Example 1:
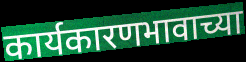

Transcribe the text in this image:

कार्यकारणभावाच्या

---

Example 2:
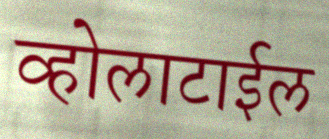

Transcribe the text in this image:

व्होलाटाईल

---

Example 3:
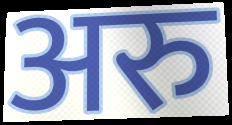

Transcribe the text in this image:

अरु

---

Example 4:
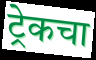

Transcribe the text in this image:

ट्रेकचा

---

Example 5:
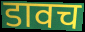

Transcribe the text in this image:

डावच